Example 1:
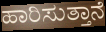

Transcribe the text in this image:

ಹಾರಿಸುತ್ತಾನೆ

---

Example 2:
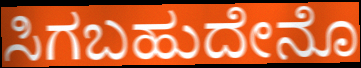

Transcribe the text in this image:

ಸಿಗಬಹುದೇನೊ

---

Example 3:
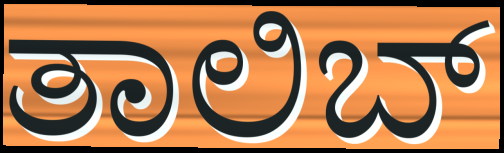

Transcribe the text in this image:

ತಾಲಿಬ್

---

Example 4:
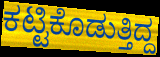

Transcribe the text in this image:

ಕಟ್ಟಿಕೊಡುತ್ತಿದ್ದ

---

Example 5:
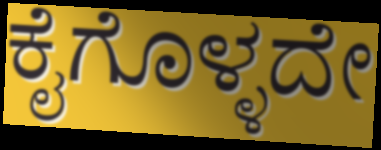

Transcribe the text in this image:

ಕೈಗೊಳ್ಳದೇ